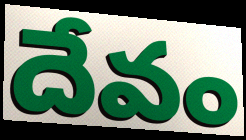
దేవం